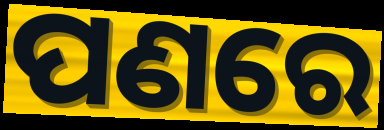
ପଣରେ